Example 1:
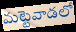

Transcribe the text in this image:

మట్టెవాడలో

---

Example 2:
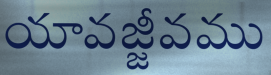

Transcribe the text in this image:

యావజ్జీవము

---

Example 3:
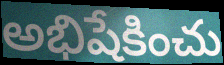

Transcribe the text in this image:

అభిషేకించు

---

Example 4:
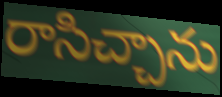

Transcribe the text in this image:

రాసిచ్చాను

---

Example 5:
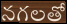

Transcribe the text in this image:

నగలతో